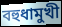
বহুধামুখী